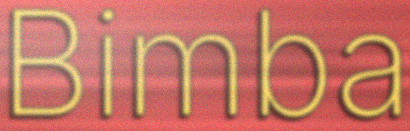
Bimba